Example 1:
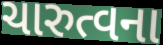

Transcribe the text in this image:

ચારુત્વના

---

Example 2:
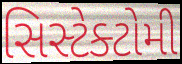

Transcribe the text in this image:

સિસ્ટેક્ટોમી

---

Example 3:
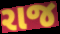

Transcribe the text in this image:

રાજ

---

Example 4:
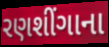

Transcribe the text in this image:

રણશીંગાના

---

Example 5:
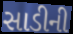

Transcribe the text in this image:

સાડીની